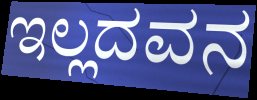
ಇಲ್ಲದವನ